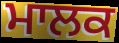
ਮਾਲਕ